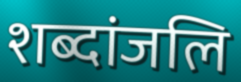
शब्दांजलि